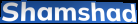
Shamshad